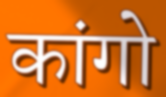
कांगो